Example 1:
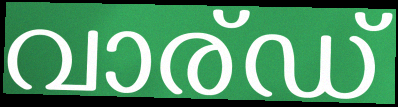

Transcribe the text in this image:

വാര്ഡ്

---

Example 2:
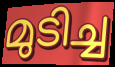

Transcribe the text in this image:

മുടിച്ച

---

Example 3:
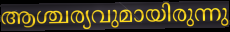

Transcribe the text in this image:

ആശ്ചര്യവുമായിരുന്നു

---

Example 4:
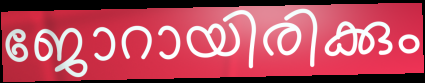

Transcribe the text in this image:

ജോറായിരിക്കും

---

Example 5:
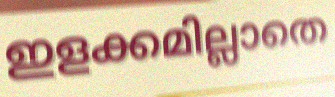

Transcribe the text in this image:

ഇളക്കമില്ലാതെ